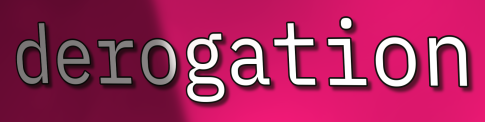
derogation